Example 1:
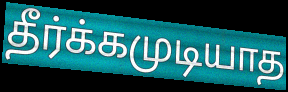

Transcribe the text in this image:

தீர்க்கமுடியாத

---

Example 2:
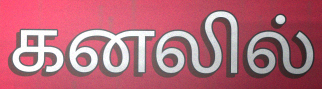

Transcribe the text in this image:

கனலில்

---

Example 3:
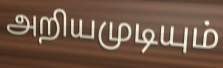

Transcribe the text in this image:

அறியமுடியும்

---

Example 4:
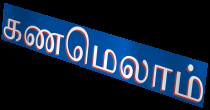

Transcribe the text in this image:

கணமெலாம்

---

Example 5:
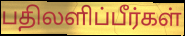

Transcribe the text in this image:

பதிலளிப்பீர்கள்